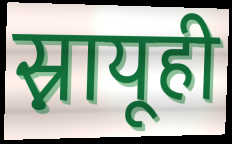
स्नायूही